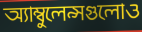
অ্যাম্বুলেন্সগুলোও